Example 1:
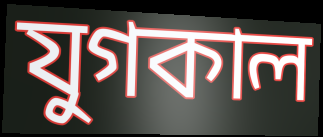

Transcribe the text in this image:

যুগকাল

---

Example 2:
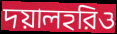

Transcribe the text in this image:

দয়ালহরিও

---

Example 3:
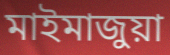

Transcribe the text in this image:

মাইমাজুয়া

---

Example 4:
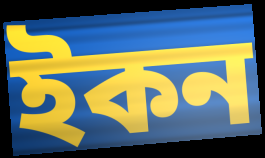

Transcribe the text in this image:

ইকন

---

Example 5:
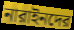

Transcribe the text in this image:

নারাইনদের